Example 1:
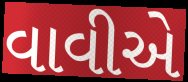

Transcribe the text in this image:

વાવીએ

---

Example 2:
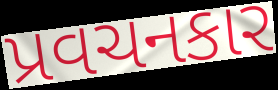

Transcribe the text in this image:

પ્રવચનકાર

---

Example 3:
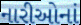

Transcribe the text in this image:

નારીઓનાં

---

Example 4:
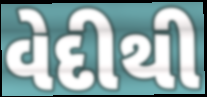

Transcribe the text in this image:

વેદીથી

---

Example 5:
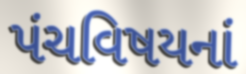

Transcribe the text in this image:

પંચવિષયનાં